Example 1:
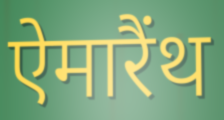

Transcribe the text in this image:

ऐमारैंथ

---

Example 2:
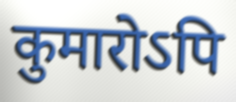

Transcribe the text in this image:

कुमारोऽपि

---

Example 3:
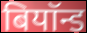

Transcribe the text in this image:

बियॉन्ड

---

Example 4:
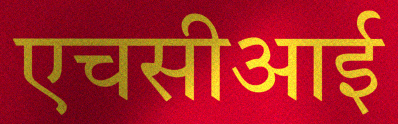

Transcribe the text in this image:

एचसीआई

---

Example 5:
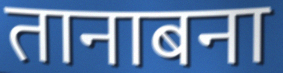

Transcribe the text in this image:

तानाबना